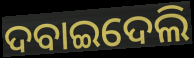
ଦବାଇଦେଲି